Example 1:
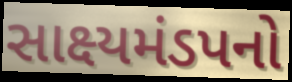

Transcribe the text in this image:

સાક્ષ્યમંડપનો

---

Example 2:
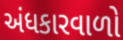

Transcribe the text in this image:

અંધકારવાળો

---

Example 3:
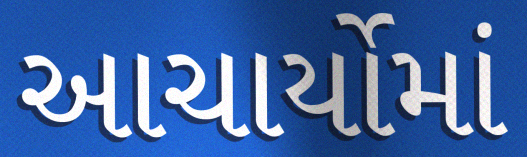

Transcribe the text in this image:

આચાર્યોમાં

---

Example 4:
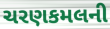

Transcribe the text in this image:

ચરણકમલની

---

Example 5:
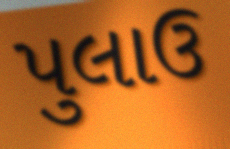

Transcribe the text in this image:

પુલાઉ